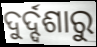
ଦୁର୍ଦ୍ଦଶାରୁ